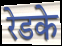
रेडके